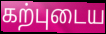
கற்புடைய